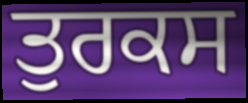
ਤੁਰਕਸ